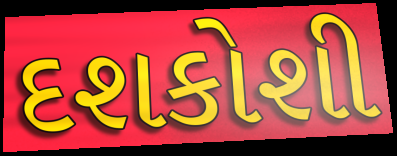
દશકોશી